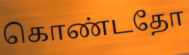
கொண்டதோ